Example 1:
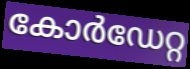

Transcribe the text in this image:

കോർഡേറ്റ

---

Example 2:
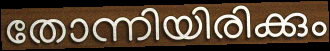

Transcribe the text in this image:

തോന്നിയിരിക്കും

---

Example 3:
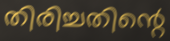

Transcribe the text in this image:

തിരിച്ചതിന്റെ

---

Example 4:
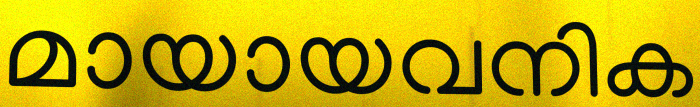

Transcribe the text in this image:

മായായവനിക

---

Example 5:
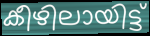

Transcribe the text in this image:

കീഴിലായിട്ട്